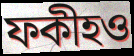
ফকীহও